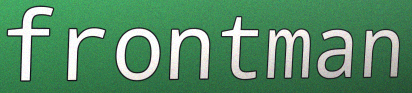
frontman